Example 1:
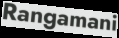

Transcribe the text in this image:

Rangamani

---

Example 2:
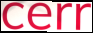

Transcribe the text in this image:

cerr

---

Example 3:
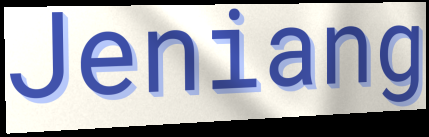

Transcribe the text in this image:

Jeniang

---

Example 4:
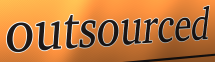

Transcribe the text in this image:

outsourced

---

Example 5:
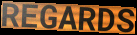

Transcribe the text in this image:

REGARDS